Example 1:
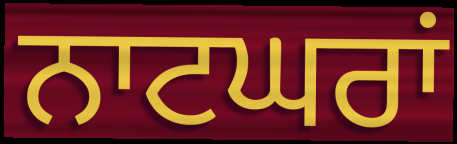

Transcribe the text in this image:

ਨਾਟਘਰਾਂ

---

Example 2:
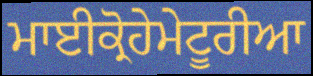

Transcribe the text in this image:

ਮਾਈਕ੍ਰੋਹੇਮੇਟੂਰੀਆ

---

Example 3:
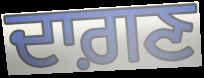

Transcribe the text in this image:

ਦਾਗ਼ਣ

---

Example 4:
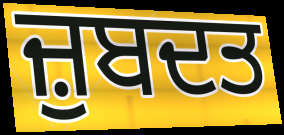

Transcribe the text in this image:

ਜ਼ੁਬਦਤ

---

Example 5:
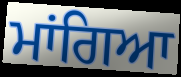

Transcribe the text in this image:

ਮਾਂਗਿਆ